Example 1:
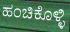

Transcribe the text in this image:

ಹಂಚಿಕೊಳ್ಳಿ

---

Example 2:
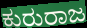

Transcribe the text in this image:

ಕುರುರಾಜ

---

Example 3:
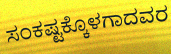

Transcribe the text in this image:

ಸಂಕಷ್ಟಕ್ಕೊಳಗಾದವರ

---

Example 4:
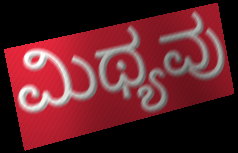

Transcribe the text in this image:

ಮಿಥ್ಯವು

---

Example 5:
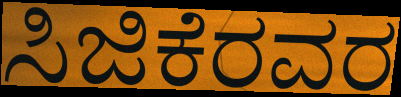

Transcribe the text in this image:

ಸಿಜಿಕೆರವರ